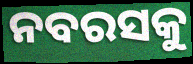
ନବରସକୁ